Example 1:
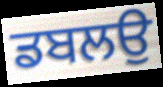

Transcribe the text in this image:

ਡਬਲਉ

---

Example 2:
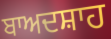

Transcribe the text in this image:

ਬਾਅਦਸ਼ਾਹ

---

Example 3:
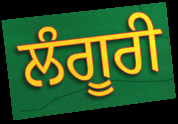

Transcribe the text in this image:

ਲੰਗੂਰੀ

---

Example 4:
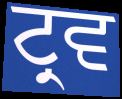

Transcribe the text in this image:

ਟ੍ਰਵ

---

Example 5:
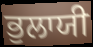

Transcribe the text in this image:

ਭੁਲਾਯੀ